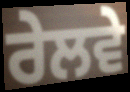
ਰੇਲਵੇ